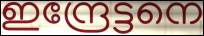
ഇന്ദ്രേട്ടനെ